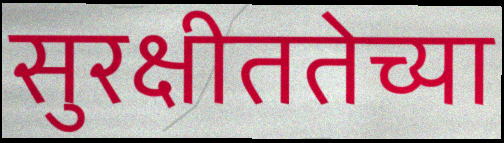
सुरक्षीततेच्या